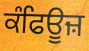
ਕੰਫਿਊਜ਼